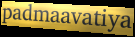
padmaavatiya